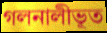
গলনালীভূত